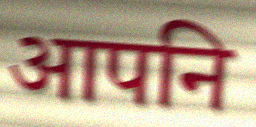
आपनि